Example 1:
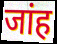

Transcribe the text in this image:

जांह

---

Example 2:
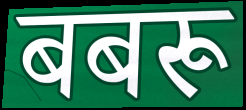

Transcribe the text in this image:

बबरू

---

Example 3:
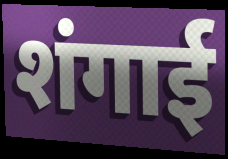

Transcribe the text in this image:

शंगाई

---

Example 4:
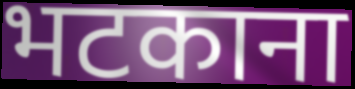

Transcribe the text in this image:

भटकाना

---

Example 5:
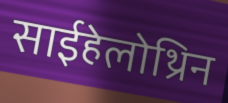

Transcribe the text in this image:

साईहेलोथ्रिन